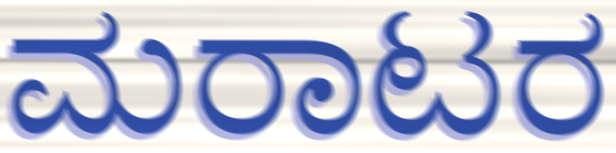
ಮರಾಟರ